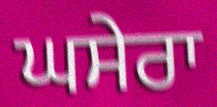
ਘਸੇਰਾ